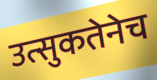
उत्सुकतेनेच